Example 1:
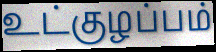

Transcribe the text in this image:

உட்குழப்பம்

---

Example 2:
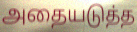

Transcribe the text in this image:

அதையடுத்த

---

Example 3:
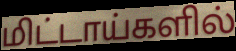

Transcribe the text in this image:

மிட்டாய்களில்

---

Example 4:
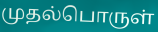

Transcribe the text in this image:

முதல்பொருள்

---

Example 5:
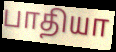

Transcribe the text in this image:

பாதியா